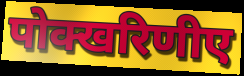
पोक्खरिणीए